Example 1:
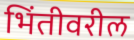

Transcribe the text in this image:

भिंतीवरील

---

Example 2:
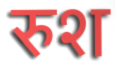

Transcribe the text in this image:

रुश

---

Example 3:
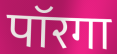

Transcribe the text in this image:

पॉरगा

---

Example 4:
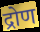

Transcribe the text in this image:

द्रोण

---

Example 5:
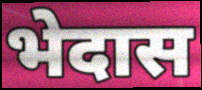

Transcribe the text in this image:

भेदास